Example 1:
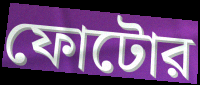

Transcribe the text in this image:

ফোটোর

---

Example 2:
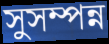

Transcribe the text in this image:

সুসম্পন্ন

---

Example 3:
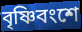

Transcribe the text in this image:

বৃষ্ণিবংশে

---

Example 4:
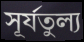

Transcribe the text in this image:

সূর্যতুল্য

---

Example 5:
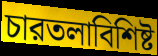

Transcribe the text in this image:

চারতলাবিশিষ্ট